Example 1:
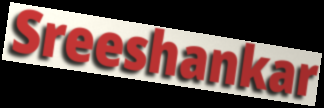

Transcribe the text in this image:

Sreeshankar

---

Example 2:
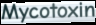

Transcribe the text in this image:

Mycotoxin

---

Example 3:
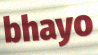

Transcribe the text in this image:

bhayo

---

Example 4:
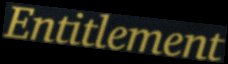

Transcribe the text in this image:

Entitlement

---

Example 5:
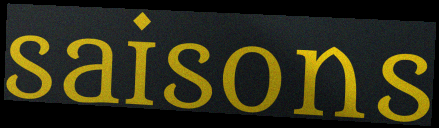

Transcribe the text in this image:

saisons